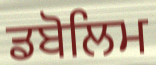
ਡਬੋਲਿਮ